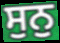
ਸੁਨੁ